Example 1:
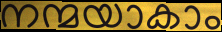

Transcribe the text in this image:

നന്മയാകാം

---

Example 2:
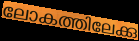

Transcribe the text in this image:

ലോകത്തിലേക്കു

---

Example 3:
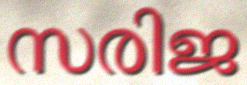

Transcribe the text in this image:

സരിജ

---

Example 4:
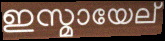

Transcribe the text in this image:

ഇസ്മായേല്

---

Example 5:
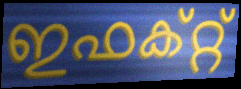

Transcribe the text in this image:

ഇഫക്റ്റ്